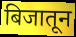
बिजातून